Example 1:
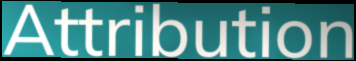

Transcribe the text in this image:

Attribution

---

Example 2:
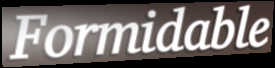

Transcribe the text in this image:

Formidable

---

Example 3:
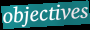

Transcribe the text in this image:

objectives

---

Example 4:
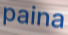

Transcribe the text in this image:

paina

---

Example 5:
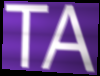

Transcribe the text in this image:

TA